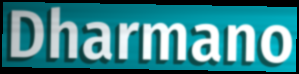
Dharmano